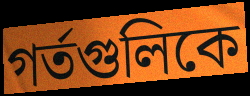
গর্তগুলিকে